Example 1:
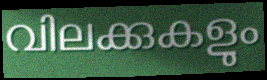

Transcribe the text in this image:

വിലക്കുകളും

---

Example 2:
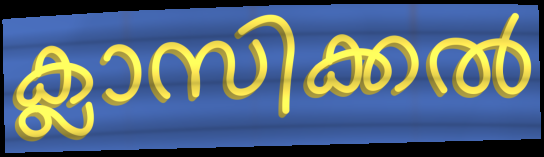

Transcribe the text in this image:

ക്ലാസിക്കൽ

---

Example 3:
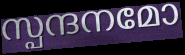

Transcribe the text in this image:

സ്പന്ദനമോ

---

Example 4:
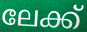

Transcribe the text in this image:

ലേക്ക്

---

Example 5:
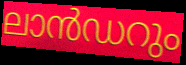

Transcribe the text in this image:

ലാൻഡറും